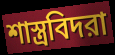
শাস্ত্রবিদরা